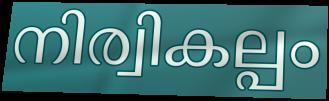
നിര്വികല്പം